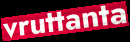
vruttanta